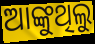
ଆଙ୍କୁଥିଲୁ